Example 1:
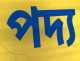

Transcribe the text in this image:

পদ্য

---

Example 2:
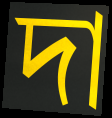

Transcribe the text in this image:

দা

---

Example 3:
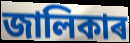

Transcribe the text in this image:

জালিকাৰ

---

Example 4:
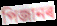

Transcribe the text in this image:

পিজানৰ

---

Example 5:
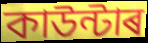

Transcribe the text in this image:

কাউন্টাৰ